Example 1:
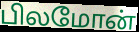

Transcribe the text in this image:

பிலமோன்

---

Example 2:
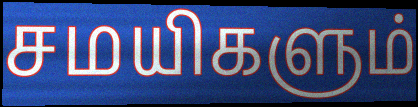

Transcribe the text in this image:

சமயிகளும்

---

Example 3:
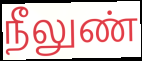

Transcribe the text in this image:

நீலுண்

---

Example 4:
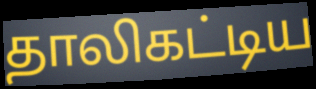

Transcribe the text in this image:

தாலிகட்டிய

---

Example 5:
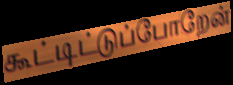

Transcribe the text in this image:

கூட்டிட்டுப்போறேன்